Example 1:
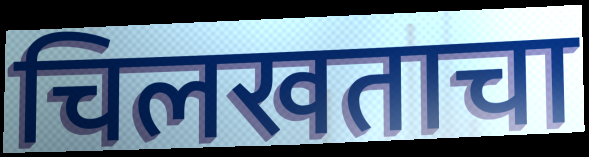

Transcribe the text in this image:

चिलखताचा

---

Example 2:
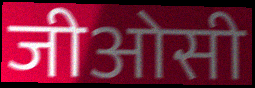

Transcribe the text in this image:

जीओसी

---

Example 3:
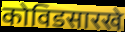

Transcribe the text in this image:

कोविडसारखे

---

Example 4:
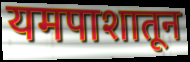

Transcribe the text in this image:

यमपाशातून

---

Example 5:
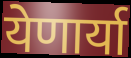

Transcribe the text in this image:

येणार्या